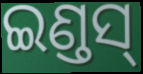
ଇଣ୍ଡସ୍